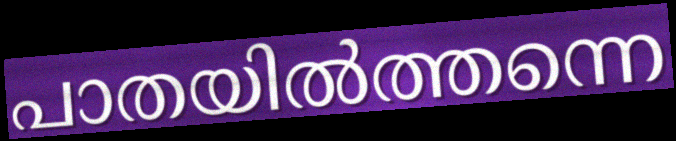
പാതയിൽത്തന്നെ